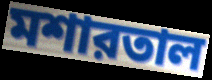
মশারতাল